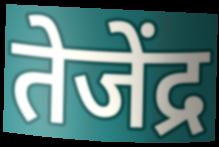
तेजेंद्र